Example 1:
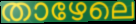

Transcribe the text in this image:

താഴേലെ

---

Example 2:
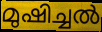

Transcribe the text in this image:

മുഷിച്ചൽ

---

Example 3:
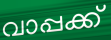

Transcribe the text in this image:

വാപ്പക്ക്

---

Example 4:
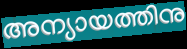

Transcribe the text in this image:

അന്യായത്തിനു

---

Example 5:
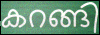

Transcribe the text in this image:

കറങ്ങി